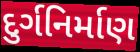
દુર્ગનિર્માણ